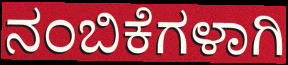
ನಂಬಿಕೆಗಳಾಗಿ